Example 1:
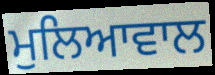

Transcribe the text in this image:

ਮੁਲਿਆਵਾਲ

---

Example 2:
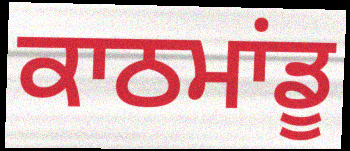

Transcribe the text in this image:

ਕਾਠਮਾਂਡੂ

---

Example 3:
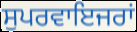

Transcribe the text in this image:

ਸੁਪਰਵਾਇਜਰਾਂ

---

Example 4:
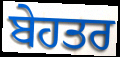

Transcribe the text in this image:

ਬੇਹਤਰ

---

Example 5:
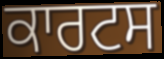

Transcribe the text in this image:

ਕਾਰਟਸ